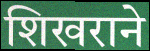
शिखराने